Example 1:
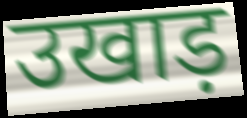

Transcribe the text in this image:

उखाड़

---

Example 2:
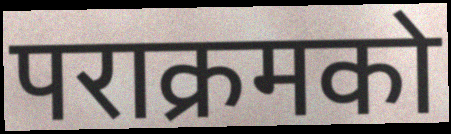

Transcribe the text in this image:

पराक्रमको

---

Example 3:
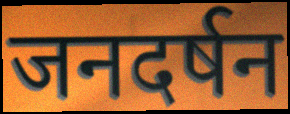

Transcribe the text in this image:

जनदर्षन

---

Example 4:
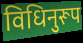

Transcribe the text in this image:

विधिनुरूप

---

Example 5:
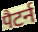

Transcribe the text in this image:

पैटर्न